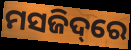
ମସଜିଦ୍‌ରେ